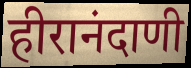
हीरानंदाणी